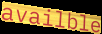
availble